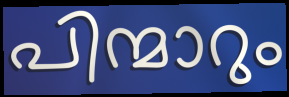
പിന്മാറും